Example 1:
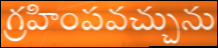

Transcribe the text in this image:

గ్రహింపవచ్చును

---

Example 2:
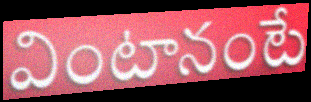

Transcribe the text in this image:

వింటానంటే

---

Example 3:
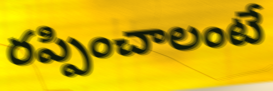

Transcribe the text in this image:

రప్పించాలంటే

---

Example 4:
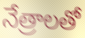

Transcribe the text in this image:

నేత్రాలతో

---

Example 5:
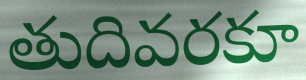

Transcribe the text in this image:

తుదివరకూ